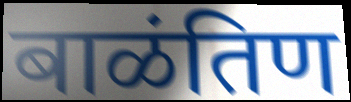
बाळंतिण